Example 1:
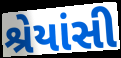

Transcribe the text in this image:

શ્રેયાંસી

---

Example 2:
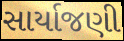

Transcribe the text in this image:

સાર્યાજણી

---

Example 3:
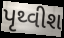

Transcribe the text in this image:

પૃથ્વીશ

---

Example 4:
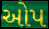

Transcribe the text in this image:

ઓપ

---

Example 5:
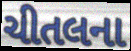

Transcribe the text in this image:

ચીતલના